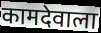
कामदेवाला